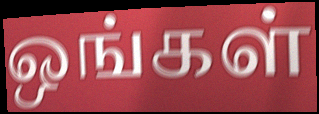
ஒங்கள்